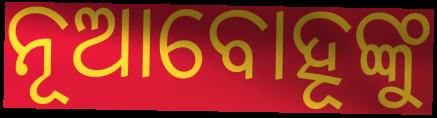
ନୂଆବୋହୂଙ୍କୁ